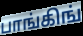
பாங்கிங்